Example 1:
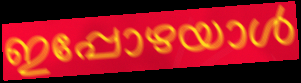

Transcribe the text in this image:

ഇപ്പോഴയാൾ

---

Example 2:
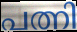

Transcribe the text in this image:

പത്നി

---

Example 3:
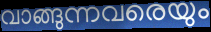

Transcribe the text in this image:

വാങ്ങുന്നവരെയും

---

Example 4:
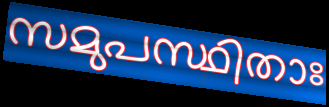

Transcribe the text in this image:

സമുപസ്ഥിതാഃ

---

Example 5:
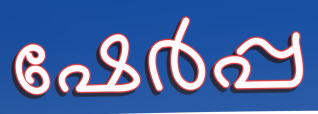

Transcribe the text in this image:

ഷേർപ്പ